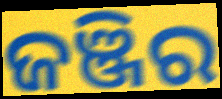
ଜଞ୍ଜିର